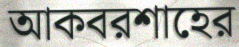
আকবরশাহের